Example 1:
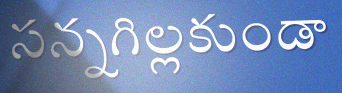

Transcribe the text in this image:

సన్నగిల్లకుండా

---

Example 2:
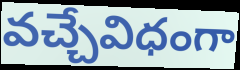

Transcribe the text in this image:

వచ్చేవిధంగా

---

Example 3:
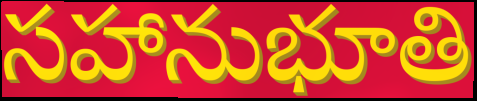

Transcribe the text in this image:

సహానుభూతి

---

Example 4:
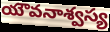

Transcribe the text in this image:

యౌవనాశ్వస్య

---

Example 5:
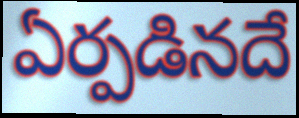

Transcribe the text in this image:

ఏర్పడినదే